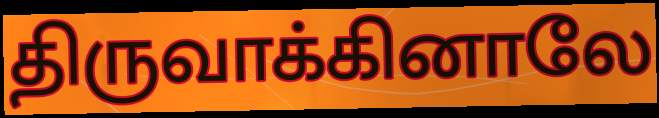
திருவாக்கினாலே